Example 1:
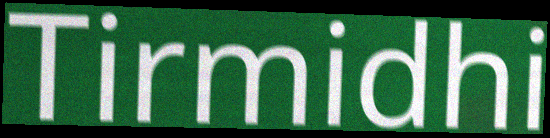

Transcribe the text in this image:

Tirmidhi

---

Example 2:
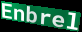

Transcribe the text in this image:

Enbrel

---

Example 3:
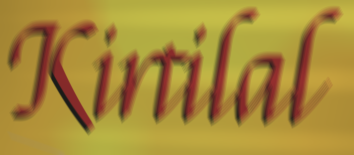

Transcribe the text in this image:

Kirtilal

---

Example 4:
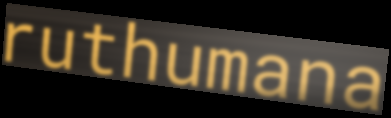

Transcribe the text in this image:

ruthumana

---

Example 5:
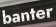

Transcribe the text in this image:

banter